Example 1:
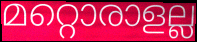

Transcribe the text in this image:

മറ്റൊരാളല്ല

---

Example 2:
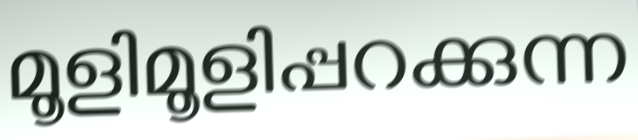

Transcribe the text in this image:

മൂളിമൂളിപ്പറക്കുന്ന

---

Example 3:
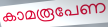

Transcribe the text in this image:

കാമരൂപേണ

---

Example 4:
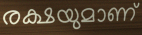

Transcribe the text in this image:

രക്ഷയുമാണ്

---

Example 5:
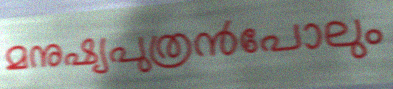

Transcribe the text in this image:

മനുഷ്യപുത്രൻപോലും